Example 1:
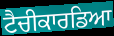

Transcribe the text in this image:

ਟੈਚੀਕਾਰਡਿਆ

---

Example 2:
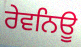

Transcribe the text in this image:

ਰੇਵਨਿਊ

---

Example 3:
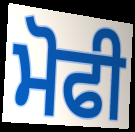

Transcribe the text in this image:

ਮੋਫੀ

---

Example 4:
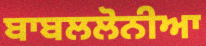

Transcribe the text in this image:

ਬਾਬਲਲੋਨੀਆ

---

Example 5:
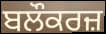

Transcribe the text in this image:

ਬਲੌਕਰਜ਼